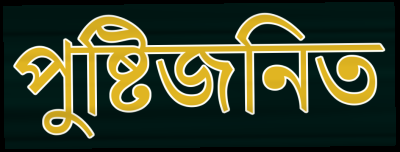
পুষ্টিজনিত